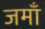
जमाँ